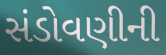
સંડોવણીની